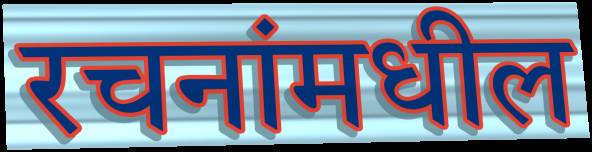
रचनांमधील